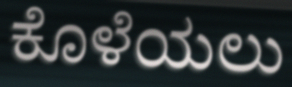
ಕೊಳೆಯಲು